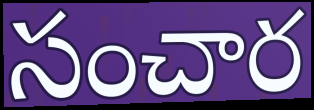
సంచార